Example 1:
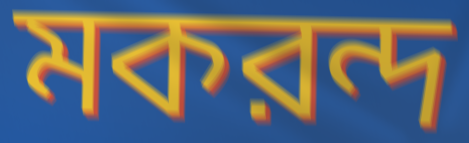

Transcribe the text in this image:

মকরন্দ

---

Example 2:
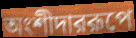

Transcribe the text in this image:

অংশীদাররূপে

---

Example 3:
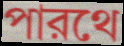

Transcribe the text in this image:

পারথে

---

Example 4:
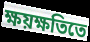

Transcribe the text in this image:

ক্ষয়ক্ষতিতে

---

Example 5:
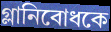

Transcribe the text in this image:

গ্লানিবোধকে